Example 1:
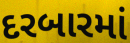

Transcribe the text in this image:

દરબારમાં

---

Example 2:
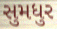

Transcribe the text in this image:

સુમધુર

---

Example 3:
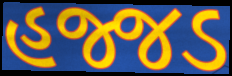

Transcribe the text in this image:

હજ્જડ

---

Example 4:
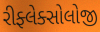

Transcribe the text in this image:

રીફ્લેક્સોલોજી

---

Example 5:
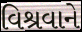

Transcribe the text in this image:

વિશ્રવાને